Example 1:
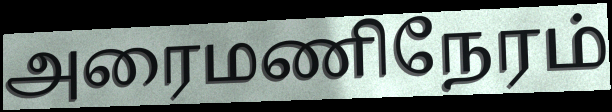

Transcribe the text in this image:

அரைமணிநேரம்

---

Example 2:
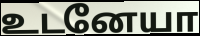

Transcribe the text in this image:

உடனேயா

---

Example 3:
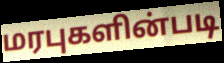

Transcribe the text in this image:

மரபுகளின்படி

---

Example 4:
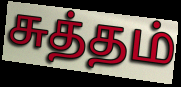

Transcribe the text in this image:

சுத்தம்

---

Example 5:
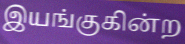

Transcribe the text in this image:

இயங்குகின்ற